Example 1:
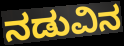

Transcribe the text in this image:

ನಡುವಿನ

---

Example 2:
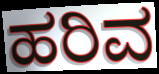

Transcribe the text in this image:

ಹರಿವ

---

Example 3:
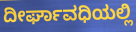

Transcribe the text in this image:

ದೀರ್ಘಾವಧಿಯಲ್ಲಿ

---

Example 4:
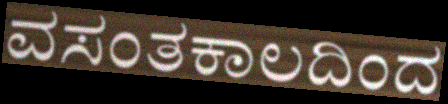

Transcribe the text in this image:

ವಸಂತಕಾಲದಿಂದ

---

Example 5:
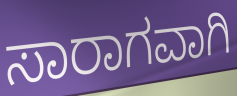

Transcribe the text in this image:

ಸಾರಾಗವಾಗಿ